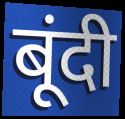
बूंदी